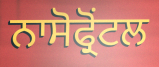
ਨਾਸੋਫ੍ਰੋਂਟਲ